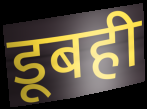
डूबही